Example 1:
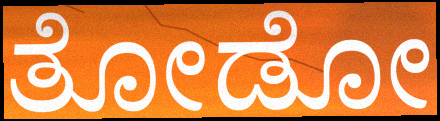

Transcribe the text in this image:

ತೋಡೋ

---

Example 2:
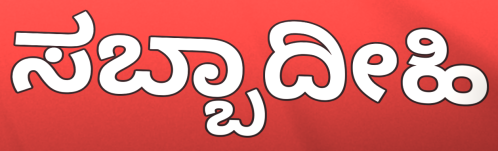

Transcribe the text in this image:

ಸಬ್ಬಾದೀಹಿ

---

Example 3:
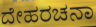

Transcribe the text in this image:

ದೇಹರಚನಾ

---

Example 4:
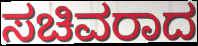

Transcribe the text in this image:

ಸಚಿವರಾದ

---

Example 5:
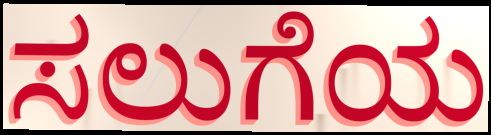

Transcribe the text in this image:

ಸಲುಗೆಯ